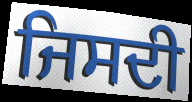
ਜਿਸਦੀ